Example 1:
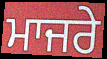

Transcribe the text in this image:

ਮਾਜਰੇ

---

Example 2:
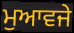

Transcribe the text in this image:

ਮੁਆਵਜੇ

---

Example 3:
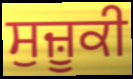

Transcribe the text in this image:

ਸੁਜ਼ੂਕੀ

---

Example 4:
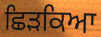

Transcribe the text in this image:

ਛਿੜਕਿਆ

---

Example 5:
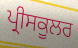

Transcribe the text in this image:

ਪ੍ਰੀਸਕੂਲਰ